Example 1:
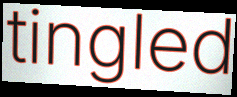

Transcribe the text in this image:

tingled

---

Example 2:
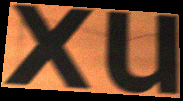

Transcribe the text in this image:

xu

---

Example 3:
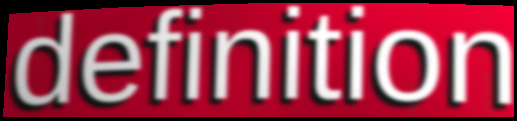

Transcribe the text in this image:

definition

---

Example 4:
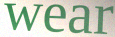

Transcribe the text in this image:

wear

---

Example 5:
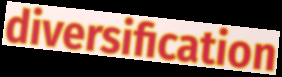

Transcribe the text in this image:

diversification